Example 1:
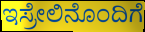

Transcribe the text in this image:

ಇಸ್ರೇಲಿನೊಂದಿಗೆ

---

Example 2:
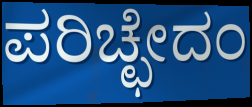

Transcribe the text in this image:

ಪರಿಚ್ಛೇದಂ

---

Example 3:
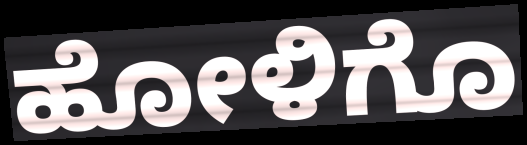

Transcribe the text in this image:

ಹೋಳಿಗೊ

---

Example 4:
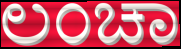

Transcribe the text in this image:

ಲಂಚಾ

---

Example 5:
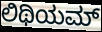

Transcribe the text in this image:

ಲಿಥಿಯಮ್